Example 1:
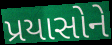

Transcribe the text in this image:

પ્રયાસોને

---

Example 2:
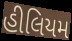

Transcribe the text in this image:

હીલિયમ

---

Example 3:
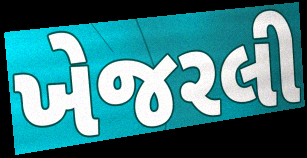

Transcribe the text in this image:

ખેજરલી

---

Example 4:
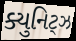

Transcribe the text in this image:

ક્યુનિટ્ઝ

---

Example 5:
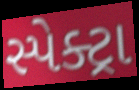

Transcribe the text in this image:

સ્પેક્ટ્રા